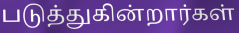
படுத்துகின்றார்கள்